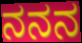
ನನನ